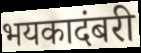
भयकादंबरी